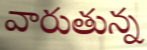
వారుతున్న